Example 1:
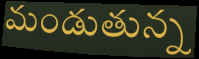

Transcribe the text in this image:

మండుతున్న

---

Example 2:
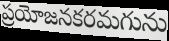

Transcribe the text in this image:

ప్రయోజనకరమగును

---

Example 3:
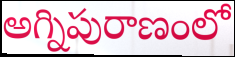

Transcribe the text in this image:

అగ్నిపురాణంలో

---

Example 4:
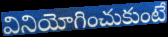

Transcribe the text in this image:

వినియోగించుకుంటే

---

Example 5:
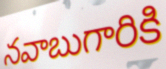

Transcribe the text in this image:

నవాబుగారికి